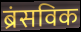
ब्रंसविक